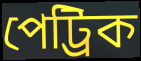
পেট্ৰিক